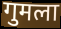
गुमला